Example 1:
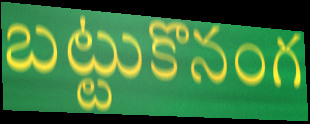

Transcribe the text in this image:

బట్టుకొనంగ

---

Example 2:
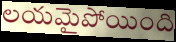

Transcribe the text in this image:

లయమైపోయింది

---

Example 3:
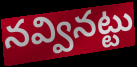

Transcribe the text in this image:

నవ్వినట్టు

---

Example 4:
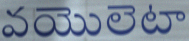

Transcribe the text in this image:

వయొలెటా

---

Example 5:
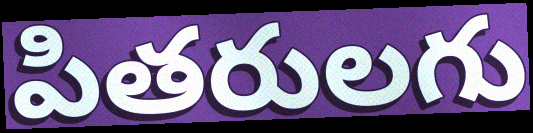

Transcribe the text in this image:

పితరులగు